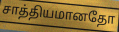
சாத்தியமானதோ